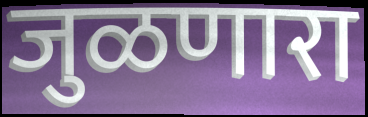
जुळणारा